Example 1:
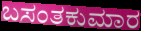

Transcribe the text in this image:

ಬಸಂತಕುಮಾರ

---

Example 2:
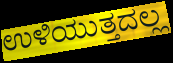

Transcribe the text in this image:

ಉಳಿಯುತ್ತದಲ್ಲ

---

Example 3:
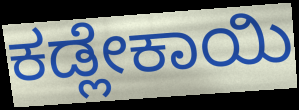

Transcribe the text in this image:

ಕಡ್ಲೇಕಾಯಿ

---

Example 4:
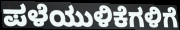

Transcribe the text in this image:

ಪಳೆಯುಳಿಕೆಗಳಿಗೆ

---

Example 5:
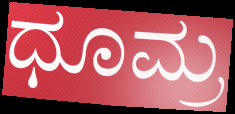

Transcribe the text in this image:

ಧೂಮ್ರ